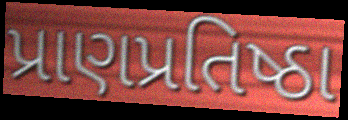
પ્રાણપ્રતિષ્ઠા